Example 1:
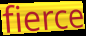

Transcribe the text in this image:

fierce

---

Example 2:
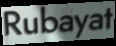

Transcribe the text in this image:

Rubayat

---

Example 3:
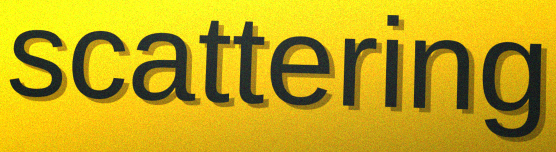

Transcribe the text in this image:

scattering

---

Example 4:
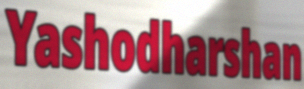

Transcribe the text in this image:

Yashodharshan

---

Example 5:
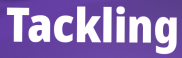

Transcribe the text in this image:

Tackling